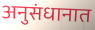
अनुसंधानात